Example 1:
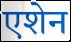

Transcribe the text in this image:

एशेन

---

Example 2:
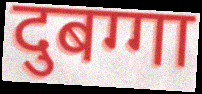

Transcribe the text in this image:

दुबग्गा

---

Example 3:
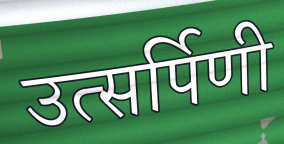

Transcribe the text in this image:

उत्सर्पिणी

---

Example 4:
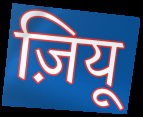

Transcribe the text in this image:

ज़ियू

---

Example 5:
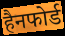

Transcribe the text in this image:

हैनफोर्ड